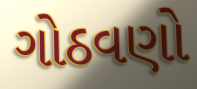
ગોઠવણો